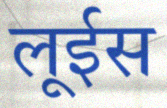
लूईस